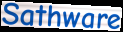
Sathware